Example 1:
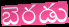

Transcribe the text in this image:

బెరడు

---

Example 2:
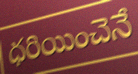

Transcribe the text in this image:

ధరియించెనే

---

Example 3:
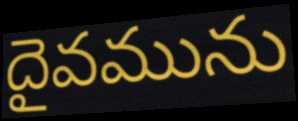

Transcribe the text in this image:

దైవమును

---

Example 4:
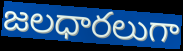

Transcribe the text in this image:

జలధారలుగా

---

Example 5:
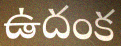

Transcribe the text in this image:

ఉదంక